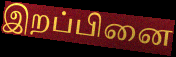
இறப்பினை